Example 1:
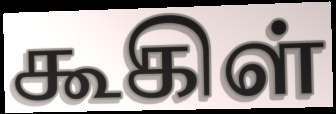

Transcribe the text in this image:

கூகிள்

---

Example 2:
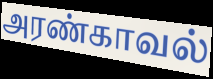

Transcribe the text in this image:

அரண்காவல்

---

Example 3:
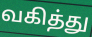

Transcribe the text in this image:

வகித்து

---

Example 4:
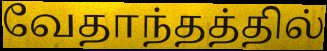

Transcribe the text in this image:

வேதாந்தத்தில்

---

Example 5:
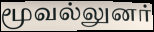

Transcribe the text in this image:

மூவல்லுனர்